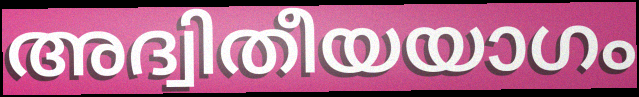
അദ്വിതീയയാഗം